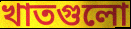
খাতগুলো